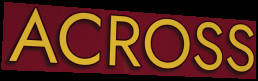
ACROSS